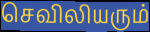
செவிலியரும்